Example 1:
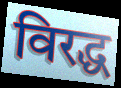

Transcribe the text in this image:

विरद्ध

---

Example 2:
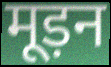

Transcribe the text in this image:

मूड़न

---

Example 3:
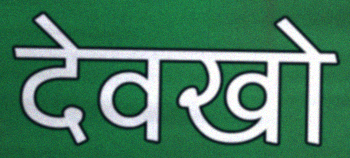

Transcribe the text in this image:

देवखो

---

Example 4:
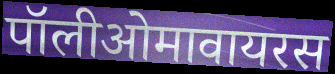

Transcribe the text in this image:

पॉलीओमावायरस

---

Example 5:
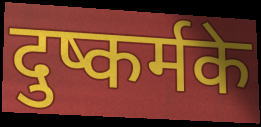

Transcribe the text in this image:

दुष्कर्मके